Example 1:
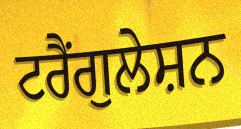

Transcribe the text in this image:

ਟਰੈਂਗੁਲੇਸ਼ਨ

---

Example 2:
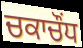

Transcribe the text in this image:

ਚਕਾਚੌਂਧ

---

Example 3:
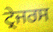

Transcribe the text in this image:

ਟ੍ਰੇਜਰਸ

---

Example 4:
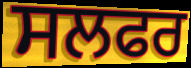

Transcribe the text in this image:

ਸਲਫਰ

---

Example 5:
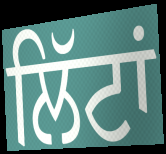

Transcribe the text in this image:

ਲਿੱਟਾਂ